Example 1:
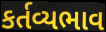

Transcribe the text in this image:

કર્તવ્યભાવ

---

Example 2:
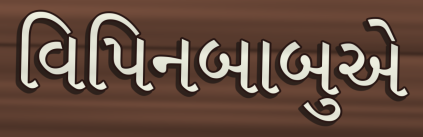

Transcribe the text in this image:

વિપિનબાબુએ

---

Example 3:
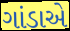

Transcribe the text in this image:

ગાંડાએ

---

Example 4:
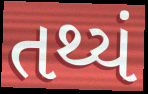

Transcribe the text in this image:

તથ્યં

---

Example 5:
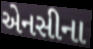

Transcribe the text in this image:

એનસીના